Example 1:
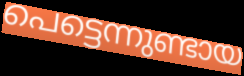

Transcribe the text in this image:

പെട്ടെന്നുണ്ടായ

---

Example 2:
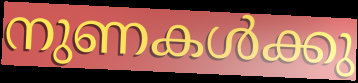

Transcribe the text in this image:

നുണകൾക്കു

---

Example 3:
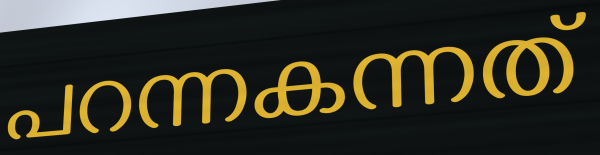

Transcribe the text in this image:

പറന്നകന്നത്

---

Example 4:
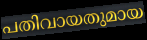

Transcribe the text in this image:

പതിവായതുമായ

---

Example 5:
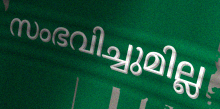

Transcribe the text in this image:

സംഭവിച്ചുമില്ല